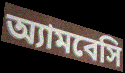
অ্যামবেসি